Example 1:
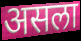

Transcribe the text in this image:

असला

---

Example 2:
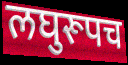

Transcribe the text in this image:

लघुरूपच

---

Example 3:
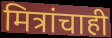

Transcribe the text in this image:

मित्रांचाही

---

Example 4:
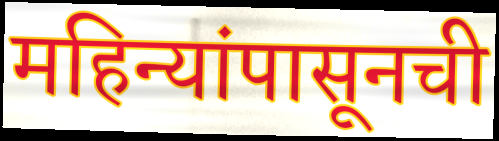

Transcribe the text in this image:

महिन्यांपासूनची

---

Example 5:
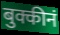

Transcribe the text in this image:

बुक्कीनं